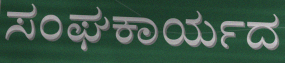
ಸಂಘಕಾರ್ಯದ